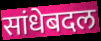
सांधेबदल